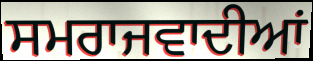
ਸਮਰਾਜਵਾਦੀਆਂ